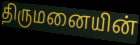
திருமனையின்